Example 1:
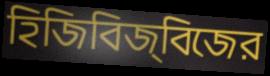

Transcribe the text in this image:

হিজিবিজ্‌বিজের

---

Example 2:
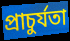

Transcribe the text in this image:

প্রাচুর্যতা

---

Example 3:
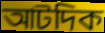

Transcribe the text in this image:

আটদিক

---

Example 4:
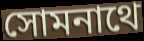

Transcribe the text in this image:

সোমনাথে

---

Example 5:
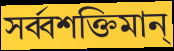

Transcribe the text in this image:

সর্ব্বশক্তিমান্